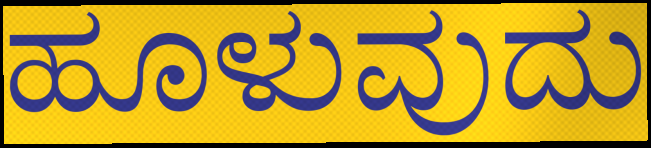
ಹೂಳುವುದು